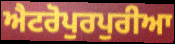
ਐਟਰੋਪੁਰਪੁਰੀਆ